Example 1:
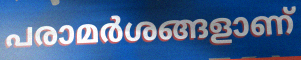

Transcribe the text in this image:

പരാമർശങ്ങളാണ്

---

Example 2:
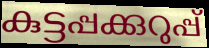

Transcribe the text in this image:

കുട്ടപ്പക്കുറുപ്പ്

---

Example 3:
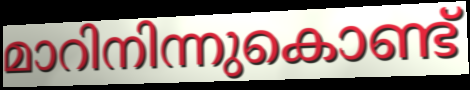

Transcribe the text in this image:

മാറിനിന്നുകൊണ്ട്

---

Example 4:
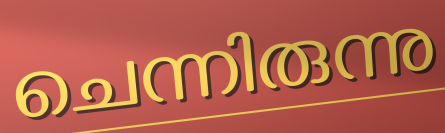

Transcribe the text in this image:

ചെന്നിരുന്നു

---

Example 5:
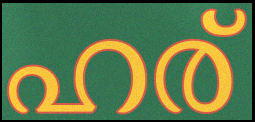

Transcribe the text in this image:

ഹര്